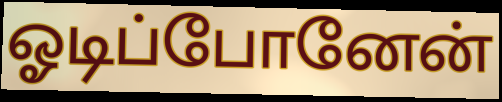
ஓடிப்போனேன்